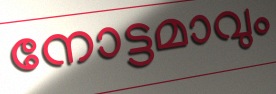
നോട്ടമാവും